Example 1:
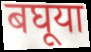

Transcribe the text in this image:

बघूया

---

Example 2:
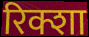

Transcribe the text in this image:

रिक्शा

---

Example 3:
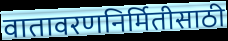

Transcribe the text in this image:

वातावरणनिर्मितीसाठी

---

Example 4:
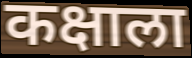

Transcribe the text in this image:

कक्षाला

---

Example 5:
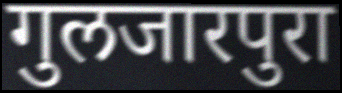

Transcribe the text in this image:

गुलजारपुरा